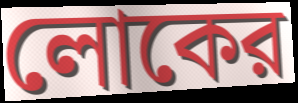
লোকের